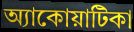
অ্যাকোয়াটিকা